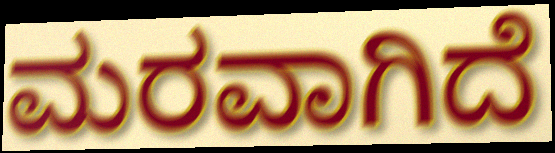
ಮರವಾಗಿದೆ